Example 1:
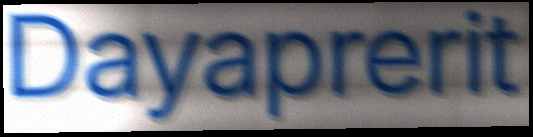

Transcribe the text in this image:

Dayaprerit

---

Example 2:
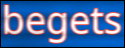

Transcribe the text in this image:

begets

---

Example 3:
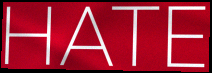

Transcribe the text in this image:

HATE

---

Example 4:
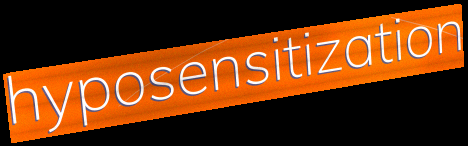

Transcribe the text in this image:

hyposensitization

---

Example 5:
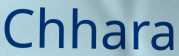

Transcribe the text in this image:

Chhara